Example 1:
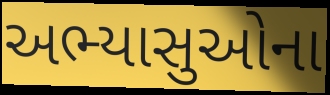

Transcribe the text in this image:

અભ્યાસુઓના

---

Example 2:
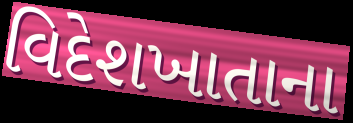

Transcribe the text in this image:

વિદેશખાતાના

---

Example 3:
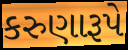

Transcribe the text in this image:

કરુણારૂપે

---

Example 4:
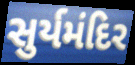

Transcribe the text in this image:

સુર્યમંદિર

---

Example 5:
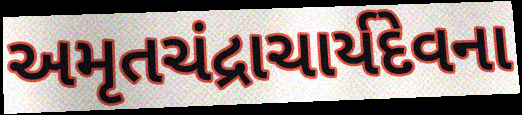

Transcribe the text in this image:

અમૃતચંદ્રાચાર્યદેવના